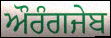
ਔਰੰਗਜੇਬ